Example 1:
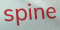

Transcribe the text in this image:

spine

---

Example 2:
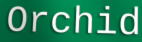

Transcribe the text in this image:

Orchid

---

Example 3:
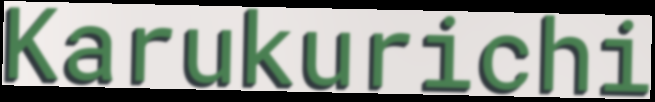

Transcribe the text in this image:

Karukurichi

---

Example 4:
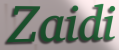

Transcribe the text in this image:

Zaidi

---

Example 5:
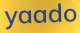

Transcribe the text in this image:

yaado